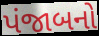
પંજાબનો